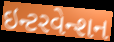
ઇન્ટરવેન્શન